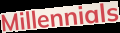
Millennials